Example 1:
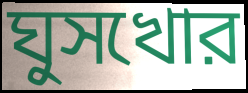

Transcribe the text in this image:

ঘুসখোর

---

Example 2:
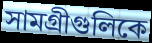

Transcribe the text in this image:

সামগ্রীগুলিকে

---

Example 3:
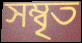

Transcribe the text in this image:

সম্বৃত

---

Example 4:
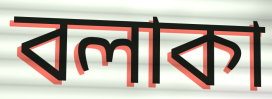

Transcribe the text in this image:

বলাকা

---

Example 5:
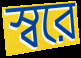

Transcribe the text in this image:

স্বরে